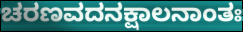
ಚರಣವದನಕ್ಷಾಲನಾಂತಃ